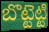
బొట్టెట్టి